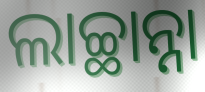
ଲାଚ୍ଛାନ୍ନା